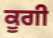
ਕੂਗੀ